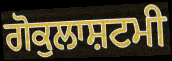
ਗੋਕੁਲਾਸ਼ਟਮੀ